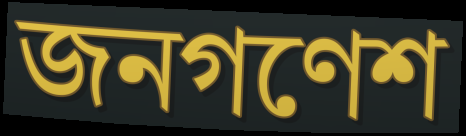
জনগণেশ